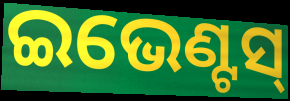
ଇଭେଣ୍ଟସ୍